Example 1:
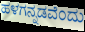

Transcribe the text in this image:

ಹಳಗನ್ನಡವೆಂದು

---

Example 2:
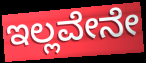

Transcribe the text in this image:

ಇಲ್ಲವೇನೇ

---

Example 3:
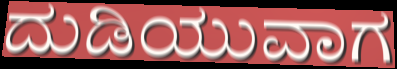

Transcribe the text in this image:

ದುಡಿಯುವಾಗ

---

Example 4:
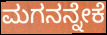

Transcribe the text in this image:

ಮಗನನ್ನೇಕೆ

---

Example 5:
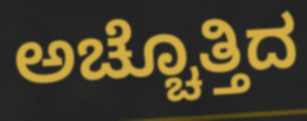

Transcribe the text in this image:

ಅಚ್ಚೊತ್ತಿದ